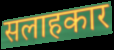
सलाहकार